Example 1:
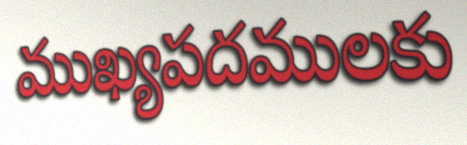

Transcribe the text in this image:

ముఖ్యపదములకు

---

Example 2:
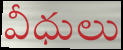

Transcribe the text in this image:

వీధులు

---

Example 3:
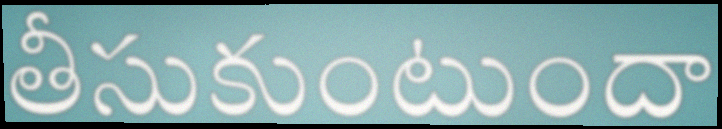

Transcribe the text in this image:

తీసుకుంటుందా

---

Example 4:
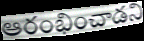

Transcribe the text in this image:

ఆరంభించాడని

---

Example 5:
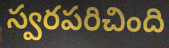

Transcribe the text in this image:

స్వరపరిచింది